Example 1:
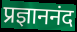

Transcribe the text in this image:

प्रज्ञाननंद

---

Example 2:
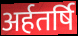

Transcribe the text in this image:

अर्हतर्षि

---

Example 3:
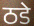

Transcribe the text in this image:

ठडे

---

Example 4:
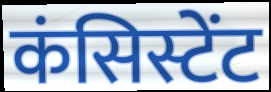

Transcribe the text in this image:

कंसिस्टेंट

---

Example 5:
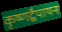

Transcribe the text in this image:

कृष्णद्वैपायन